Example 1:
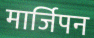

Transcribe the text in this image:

मार्जिपन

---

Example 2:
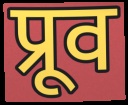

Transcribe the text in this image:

प्रूव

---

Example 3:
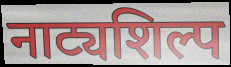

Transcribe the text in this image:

नाट्यशिल्प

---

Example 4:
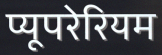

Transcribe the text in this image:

प्यूपरेरियम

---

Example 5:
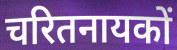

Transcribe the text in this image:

चरितनायकों